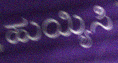
ಹುಯ್ಯಿಸಿ